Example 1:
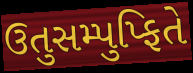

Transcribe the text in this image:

ઉતુસમ્પુપ્ફિતે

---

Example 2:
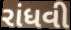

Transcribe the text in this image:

રાંધવી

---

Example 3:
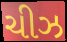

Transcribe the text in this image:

ચીઝ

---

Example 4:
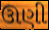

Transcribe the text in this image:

ઊણી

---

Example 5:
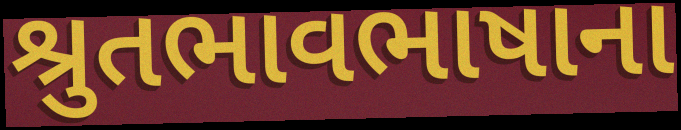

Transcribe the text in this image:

શ્રુતભાવભાષાના